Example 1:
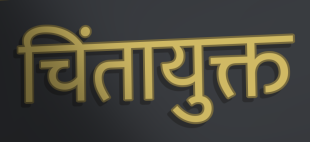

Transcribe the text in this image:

चिंतायुक्त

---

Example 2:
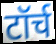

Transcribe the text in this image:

टॉर्च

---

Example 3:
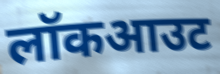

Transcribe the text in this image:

लॉकआउट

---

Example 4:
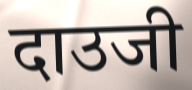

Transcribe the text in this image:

दाउजी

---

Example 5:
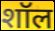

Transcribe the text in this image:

शॉल